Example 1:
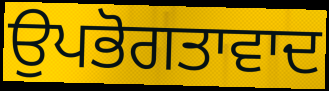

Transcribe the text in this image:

ਉਪਭੋਗਤਾਵਾਦ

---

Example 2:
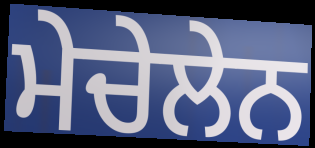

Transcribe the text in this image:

ਮੇਚੇਲੇਨ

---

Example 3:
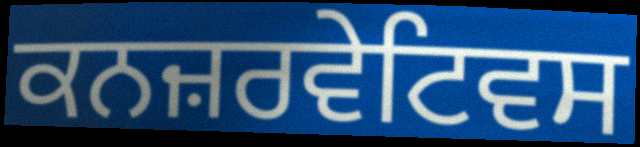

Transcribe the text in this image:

ਕਨਜ਼ਰਵੇਟਿਵਸ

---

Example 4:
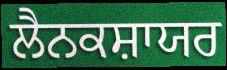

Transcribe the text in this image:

ਲੈਨਕਸ਼ਾਯਰ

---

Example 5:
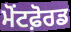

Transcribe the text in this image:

ਮੋਂਟਫ਼ੋਰਡ